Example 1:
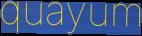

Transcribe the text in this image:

quayum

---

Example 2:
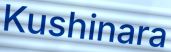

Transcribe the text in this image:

Kushinara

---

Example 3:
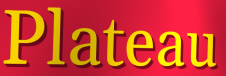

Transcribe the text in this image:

Plateau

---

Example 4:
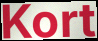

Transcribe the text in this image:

Kort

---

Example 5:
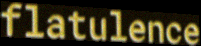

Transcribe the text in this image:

flatulence